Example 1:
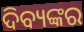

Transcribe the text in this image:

ଦିବ୍ୟଙ୍କର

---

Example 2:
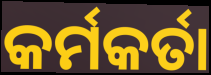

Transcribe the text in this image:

କର୍ମକର୍ତା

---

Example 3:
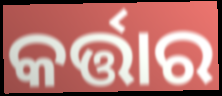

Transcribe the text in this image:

କର୍ତ୍ତାର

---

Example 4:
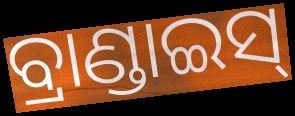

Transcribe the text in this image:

ବ୍ରାଣ୍ଡାଇସ୍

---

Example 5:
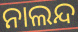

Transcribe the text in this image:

ନାଲନ୍ଦ